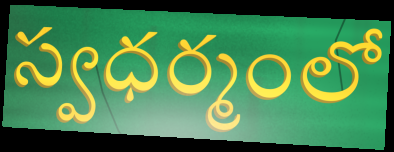
స్వధర్మంలో